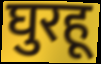
घुरहू